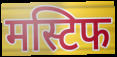
मस्टिफ